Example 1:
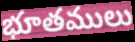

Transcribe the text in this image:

భూతములు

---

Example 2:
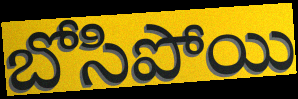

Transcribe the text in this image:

బోసిపోయి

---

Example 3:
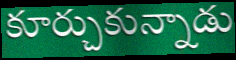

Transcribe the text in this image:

కూర్చుకున్నాడు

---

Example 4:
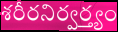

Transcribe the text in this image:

శరీరనిర్వర్త్యం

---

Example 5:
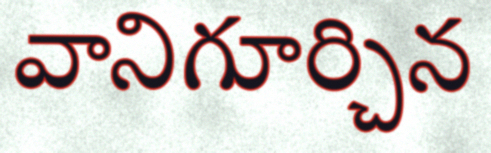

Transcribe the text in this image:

వానిగూర్చిన